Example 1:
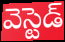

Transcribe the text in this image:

వెస్టెడ్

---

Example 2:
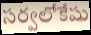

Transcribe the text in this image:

సర్వలోకేషు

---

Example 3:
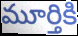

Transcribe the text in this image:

మూర్తికి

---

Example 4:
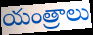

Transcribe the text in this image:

యంత్రాలు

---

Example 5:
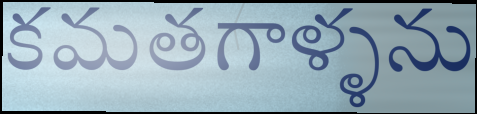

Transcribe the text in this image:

కమతగాళ్ళను